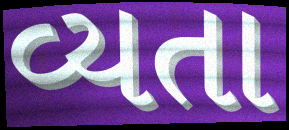
વ્યતા